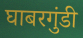
घाबरगुंडी